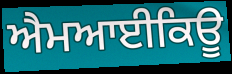
ਐਮਆਈਕਿਊ